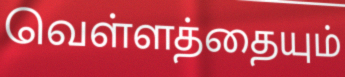
வெள்ளத்தையும்